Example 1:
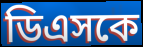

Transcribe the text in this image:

ডিএসকে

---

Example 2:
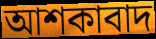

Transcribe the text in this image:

আশকাবাদ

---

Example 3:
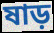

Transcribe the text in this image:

ষাড়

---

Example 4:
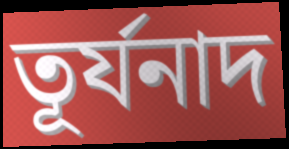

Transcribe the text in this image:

তূর্যনাদ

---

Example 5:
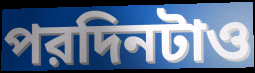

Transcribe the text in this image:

পরদিনটাও